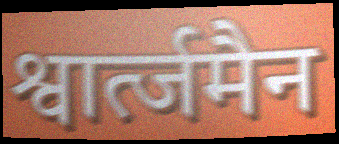
श्वार्त्जमैन